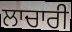
ਲਾਚਾਰੀ